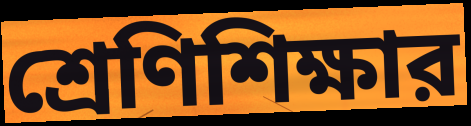
শ্রেণিশিক্ষার